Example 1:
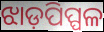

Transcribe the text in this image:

ଝାଡ଼ପିପ୍ପଳ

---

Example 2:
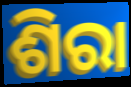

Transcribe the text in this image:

ଶିରା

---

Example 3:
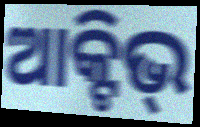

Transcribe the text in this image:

ଆକ୍ଟିଭ୍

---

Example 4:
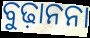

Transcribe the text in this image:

ବୁଢ଼ାନନା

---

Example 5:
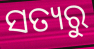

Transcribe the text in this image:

ସତ୍ୟରୁ